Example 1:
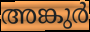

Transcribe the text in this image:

അങ്കുർ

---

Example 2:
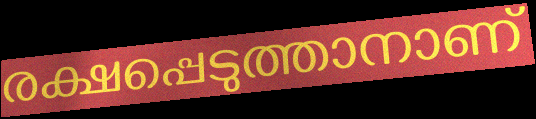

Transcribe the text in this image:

രക്ഷപ്പെടുത്താനാണ്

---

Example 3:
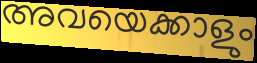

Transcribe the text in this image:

അവയെക്കാളും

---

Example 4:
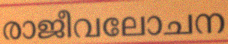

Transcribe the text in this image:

രാജീവലോചന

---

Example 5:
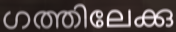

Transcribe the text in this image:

ഗത്തിലേക്കു